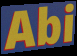
Abi